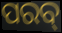
ପରବ୍